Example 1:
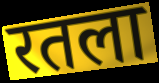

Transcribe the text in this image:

रतला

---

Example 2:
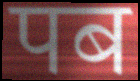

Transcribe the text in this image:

पब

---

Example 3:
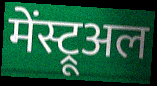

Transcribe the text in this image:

मेंस्ट्रूअल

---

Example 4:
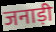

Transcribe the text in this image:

जनाड़ी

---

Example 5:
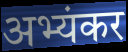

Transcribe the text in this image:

अभ्यंकर